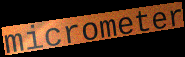
micrometer